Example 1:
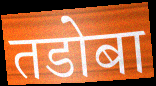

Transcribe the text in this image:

तडोबा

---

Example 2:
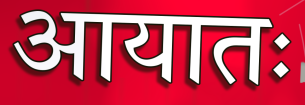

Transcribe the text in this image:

आयातः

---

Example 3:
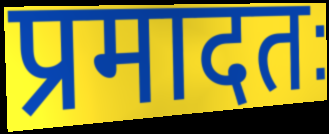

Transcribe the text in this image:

प्रमादतः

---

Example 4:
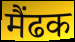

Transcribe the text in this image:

मैंढक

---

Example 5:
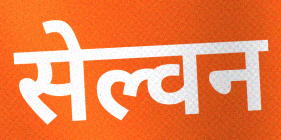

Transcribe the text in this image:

सेल्वन